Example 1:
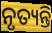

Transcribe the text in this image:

ନୃତ୍ୟନ୍ତି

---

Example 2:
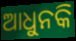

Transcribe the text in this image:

ଆଧୁନକି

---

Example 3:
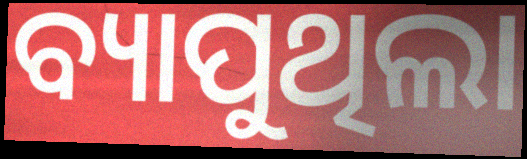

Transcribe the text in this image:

ବ୍ୟାପୁଥିଲା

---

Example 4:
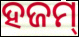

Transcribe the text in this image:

ହଜମ୍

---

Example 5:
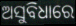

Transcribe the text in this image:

ଅସୁବିଧାରେ